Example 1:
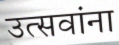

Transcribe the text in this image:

उत्सवांना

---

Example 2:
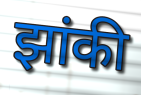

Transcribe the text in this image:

झांकी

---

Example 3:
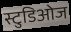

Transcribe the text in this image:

स्टुडिओज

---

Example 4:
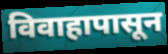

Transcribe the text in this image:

विवाहापासून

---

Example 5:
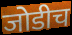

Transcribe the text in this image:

जोडीच